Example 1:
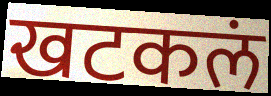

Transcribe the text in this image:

खटकलं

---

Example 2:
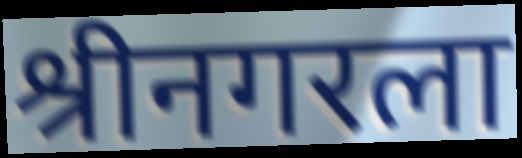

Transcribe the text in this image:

श्रीनगरला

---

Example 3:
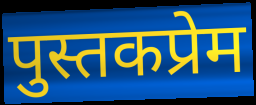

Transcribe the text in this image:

पुस्तकप्रेम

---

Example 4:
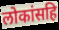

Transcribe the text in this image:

लोकांसहि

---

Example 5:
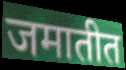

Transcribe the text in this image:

जमातीत